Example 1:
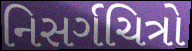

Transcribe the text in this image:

નિસર્ગચિત્રો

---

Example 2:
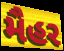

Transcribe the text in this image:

મૈહર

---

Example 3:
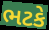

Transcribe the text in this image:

ભટકે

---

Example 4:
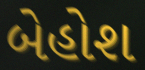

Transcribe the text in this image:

બેહોશ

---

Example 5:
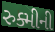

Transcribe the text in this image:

રુક્મીની